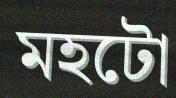
মহটো